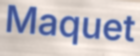
Maquet